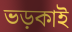
ভড়কাই